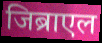
जिब्राएल